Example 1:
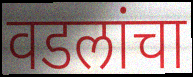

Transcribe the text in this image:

वडलांचा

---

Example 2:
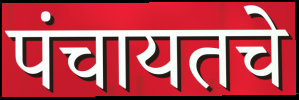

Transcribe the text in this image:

पंचायतचे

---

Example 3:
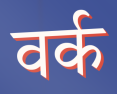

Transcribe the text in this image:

वर्क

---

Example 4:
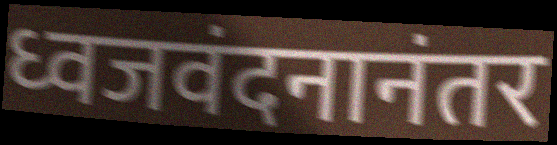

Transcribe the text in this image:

ध्वजवंदनानंतर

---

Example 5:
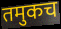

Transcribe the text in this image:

तमुकच